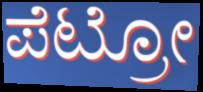
ಪೆಟ್ರೋ